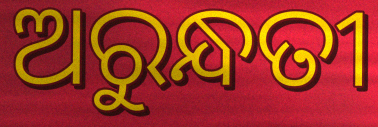
ଅରୁନ୍ଧତୀ